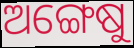
ଅଙ୍ଗେଷୁ